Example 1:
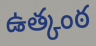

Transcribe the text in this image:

ఉత్కంఠ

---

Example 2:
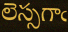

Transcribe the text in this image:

లెస్సగాఁ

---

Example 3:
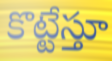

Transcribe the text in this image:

కొట్టేస్తూ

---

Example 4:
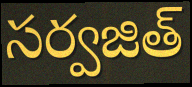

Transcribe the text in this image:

సర్వజిత్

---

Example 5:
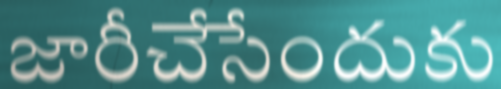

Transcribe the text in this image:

జారీచేసేందుకు